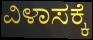
ವಿಳಾಸಕ್ಕೆ